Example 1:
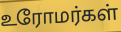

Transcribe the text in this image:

உரோமர்கள்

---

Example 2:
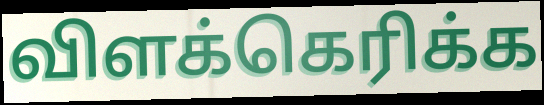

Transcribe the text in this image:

விளக்கெரிக்க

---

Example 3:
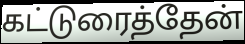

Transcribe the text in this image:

கட்டுரைத்தேன்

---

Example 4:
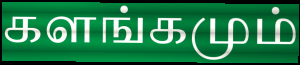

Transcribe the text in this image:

களங்கமும்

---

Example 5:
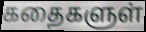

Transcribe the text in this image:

கதைகளுள்